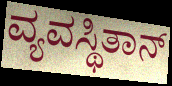
ವ್ಯವಸ್ಥಿತಾನ್